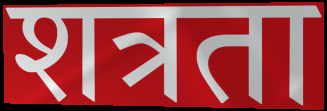
शत्रता